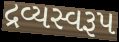
દ્રવ્યસ્વરૂપ